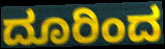
ದೂರಿಂದ